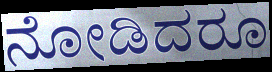
ನೋಡಿದರೂ